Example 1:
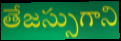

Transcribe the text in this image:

తేజస్సుగాని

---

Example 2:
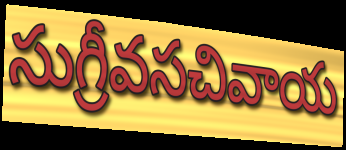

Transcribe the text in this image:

సుగ్రీవసచివాయ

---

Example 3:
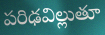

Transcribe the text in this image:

పరిఢవిల్లుతూ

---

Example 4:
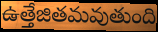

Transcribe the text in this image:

ఉత్తేజితమవుతుంది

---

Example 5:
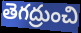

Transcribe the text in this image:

తెగద్రుంచి